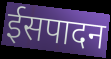
ईसपादन